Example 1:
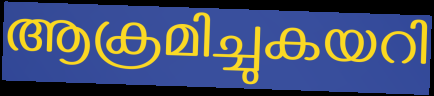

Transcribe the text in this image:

ആക്രമിച്ചുകയറി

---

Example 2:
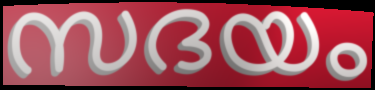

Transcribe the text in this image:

സദയം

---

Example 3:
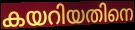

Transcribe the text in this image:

കയറിയതിനെ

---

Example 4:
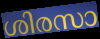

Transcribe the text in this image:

ശിരസാ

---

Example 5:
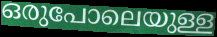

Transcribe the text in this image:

ഒരുപോലെയുള്ള